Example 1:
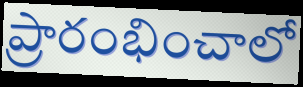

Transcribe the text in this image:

ప్రారంభించాలో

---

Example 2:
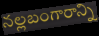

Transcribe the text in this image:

నల్లబంగారాన్ని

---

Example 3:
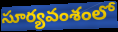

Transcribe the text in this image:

సూర్యవంశంలో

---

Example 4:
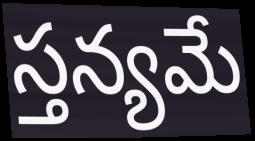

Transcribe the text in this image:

స్తన్యమే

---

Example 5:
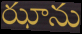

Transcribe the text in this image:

ఝాను